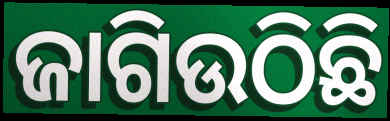
ଜାଗିଉଠିଛି